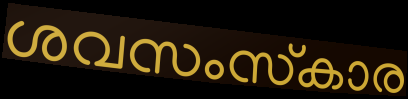
ശവസംസ്‌കാര